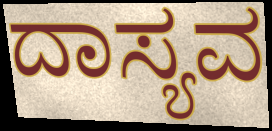
ದಾಸ್ಯವ